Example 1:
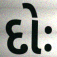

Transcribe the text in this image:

દોઃ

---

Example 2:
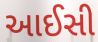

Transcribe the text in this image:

આઈસી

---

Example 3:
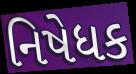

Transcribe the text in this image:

નિષેધક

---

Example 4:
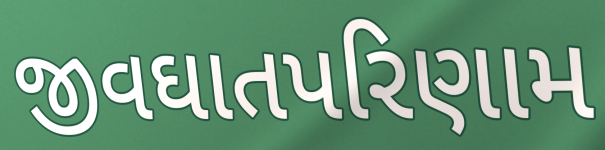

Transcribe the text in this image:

જીવઘાતપરિણામ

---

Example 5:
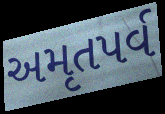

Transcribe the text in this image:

અમૃતપર્વ